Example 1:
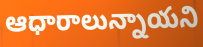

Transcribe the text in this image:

ఆధారాలున్నాయని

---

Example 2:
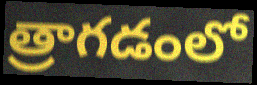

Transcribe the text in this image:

త్రాగడంలో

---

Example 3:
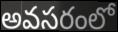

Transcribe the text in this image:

అవసరంలో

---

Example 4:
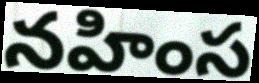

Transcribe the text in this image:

నహింస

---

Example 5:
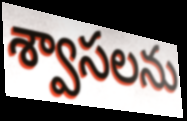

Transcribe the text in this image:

శ్వాసలను